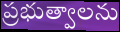
ప్రభుత్వాలను